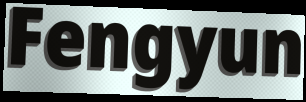
Fengyun